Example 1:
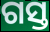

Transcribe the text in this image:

ଗସ୍ତ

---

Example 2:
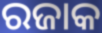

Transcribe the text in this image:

ରଜାକ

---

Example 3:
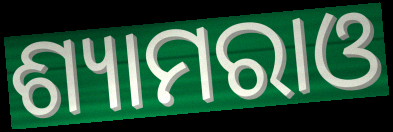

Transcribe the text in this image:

ଶ୍ୟାମରାଓ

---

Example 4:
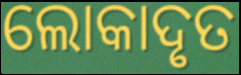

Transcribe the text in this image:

ଲୋକାଦୃତ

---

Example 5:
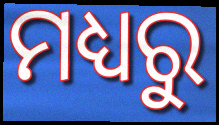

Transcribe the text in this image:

ମଧ୍ୟରୁ